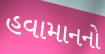
હવામાનનો